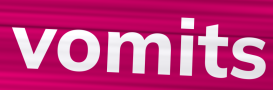
vomits